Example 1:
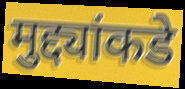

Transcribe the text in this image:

मुद्द्यांकडे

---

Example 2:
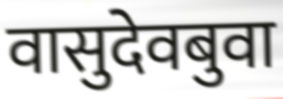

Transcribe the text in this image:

वासुदेवबुवा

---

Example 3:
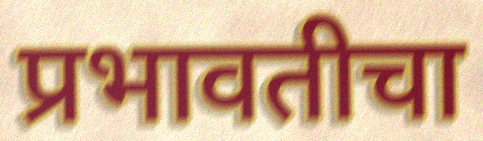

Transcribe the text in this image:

प्रभावतीचा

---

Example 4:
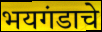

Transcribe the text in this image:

भयगंडाचे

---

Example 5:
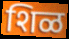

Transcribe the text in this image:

शिळ